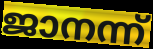
ജാനന്ന്